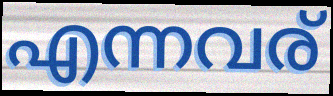
എന്നവര്